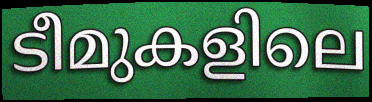
ടീമുകളിലെ